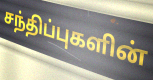
சந்திப்புகளின்